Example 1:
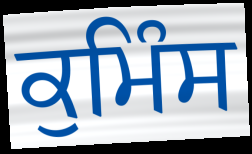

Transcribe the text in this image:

ਕੁਮਿੰਸ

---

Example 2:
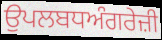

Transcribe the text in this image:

ਉਪਲਬਧਅੰਗਰੇਜ਼ੀ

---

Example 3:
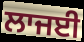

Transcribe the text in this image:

ਲਾਜਈ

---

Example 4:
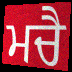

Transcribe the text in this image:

ਮਚੈ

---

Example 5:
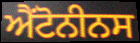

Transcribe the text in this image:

ਐਂਟੋਨੀਨਸ